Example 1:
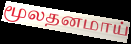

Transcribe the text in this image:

மூலதனமாய்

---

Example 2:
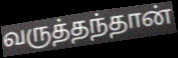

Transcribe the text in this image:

வருத்தந்தான்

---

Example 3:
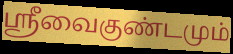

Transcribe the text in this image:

ஸ்ரீவைகுண்டமும்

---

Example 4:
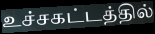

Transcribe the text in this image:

உச்சகட்டத்தில்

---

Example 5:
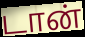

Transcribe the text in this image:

டான்